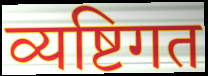
व्यष्टिगत